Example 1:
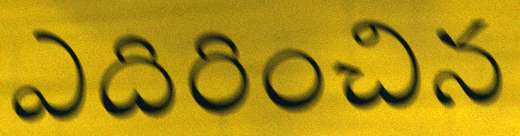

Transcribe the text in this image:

ఎదిరించిన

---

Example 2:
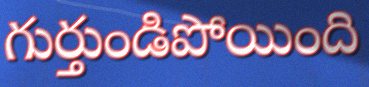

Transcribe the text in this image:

గుర్తుండిపోయింది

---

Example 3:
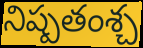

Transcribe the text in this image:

నిష్పతంశ్చ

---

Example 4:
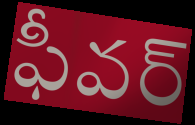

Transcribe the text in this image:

ఫీవర్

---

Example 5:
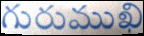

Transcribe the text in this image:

గురుముఖి